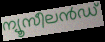
ന്യൂസീലൻഡ്